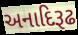
અનાદિરૂઢ